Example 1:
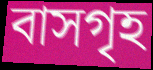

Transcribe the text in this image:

বাসগৃহ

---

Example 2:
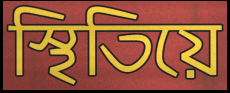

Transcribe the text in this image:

স্থিতিয়ে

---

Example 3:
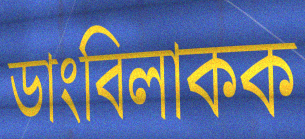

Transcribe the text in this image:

ডাংবিলাকক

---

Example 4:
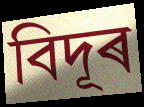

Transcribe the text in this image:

বিদূৰ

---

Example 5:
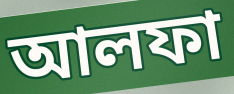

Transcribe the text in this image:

আলফা